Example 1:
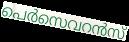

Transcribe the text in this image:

പെർസെവറൻസ്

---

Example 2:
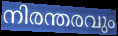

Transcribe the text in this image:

നിരന്തരവും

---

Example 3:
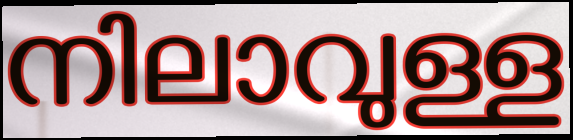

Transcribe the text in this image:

നിലാവുള്ള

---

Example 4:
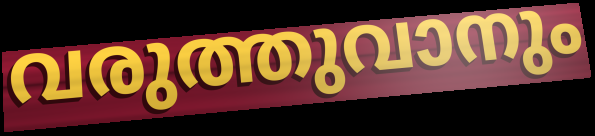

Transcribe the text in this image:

വരുത്തുവാനും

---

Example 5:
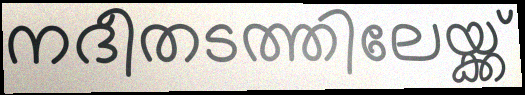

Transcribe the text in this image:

നദീതടത്തിലേയ്ക്ക്